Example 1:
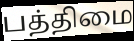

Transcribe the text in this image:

பத்திமை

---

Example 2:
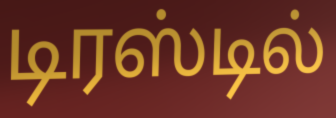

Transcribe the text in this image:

டிரஸ்டில்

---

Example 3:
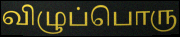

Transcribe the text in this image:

விழுப்பொரு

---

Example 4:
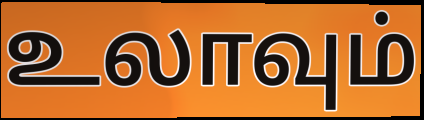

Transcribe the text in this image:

உலாவும்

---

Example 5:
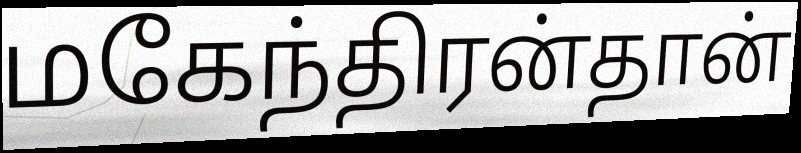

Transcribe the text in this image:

மகேந்திரன்தான்